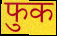
फुक